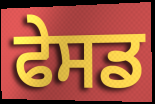
ਫੇਸਡ